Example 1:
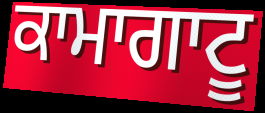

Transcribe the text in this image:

ਕਾਮਾਗਾਟੂ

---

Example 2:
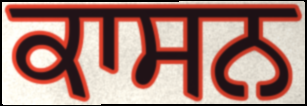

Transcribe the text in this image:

ਕਾਸਨ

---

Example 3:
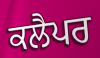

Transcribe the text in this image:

ਕਲੈਪਰ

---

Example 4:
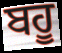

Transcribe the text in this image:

ਬਹੂ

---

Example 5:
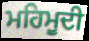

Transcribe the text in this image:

ਮਹਿਮੂਦੀ